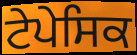
ਟੇਪੇਸਿਕ